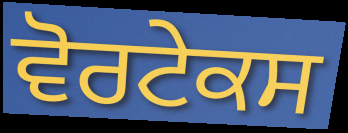
ਵੋਰਟੇਕਸ